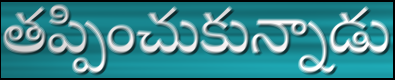
తప్పించుకున్నాడు